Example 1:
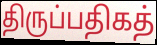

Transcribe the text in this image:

திருப்பதிகத்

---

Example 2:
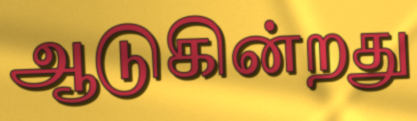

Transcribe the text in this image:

ஆடுகின்றது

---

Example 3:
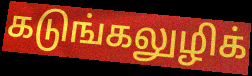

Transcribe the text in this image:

கடுங்கலுழிக்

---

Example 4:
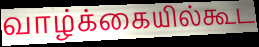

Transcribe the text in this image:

வாழ்க்கையில்கூட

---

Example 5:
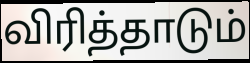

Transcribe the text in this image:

விரித்தாடும்